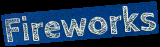
Fireworks